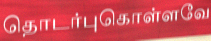
தொடர்புகொள்ளவே